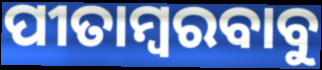
ପୀତାମ୍ବରବାବୁ